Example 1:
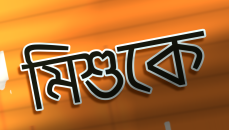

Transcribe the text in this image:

মিশুকে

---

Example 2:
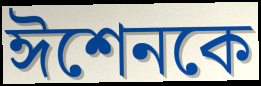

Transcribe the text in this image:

ঈশেনকে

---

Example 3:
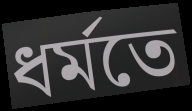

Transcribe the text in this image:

ধর্মতে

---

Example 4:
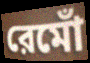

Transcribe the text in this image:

রেমোঁ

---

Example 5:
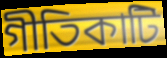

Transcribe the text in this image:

গীতিকাটি